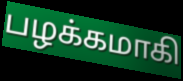
பழக்கமாகி